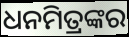
ଧନମିତ୍ରଙ୍କର